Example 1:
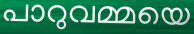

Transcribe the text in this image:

പാറുവമ്മയെ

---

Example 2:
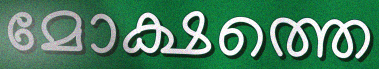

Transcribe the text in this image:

മോക്ഷത്തെ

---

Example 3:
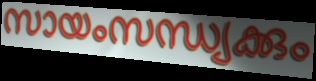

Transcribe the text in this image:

സായംസന്ധ്യക്കും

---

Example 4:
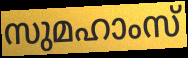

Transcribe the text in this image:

സുമഹാംസ്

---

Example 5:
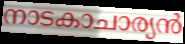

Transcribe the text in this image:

നാടകാചാര്യൻ